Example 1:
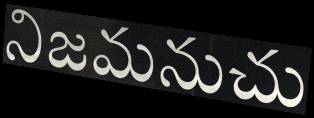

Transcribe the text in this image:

నిజమనుచు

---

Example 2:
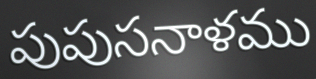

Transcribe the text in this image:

పుపుసనాళము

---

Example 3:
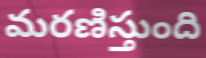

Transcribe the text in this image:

మరణిస్తుంది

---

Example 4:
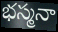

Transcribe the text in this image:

భస్మనా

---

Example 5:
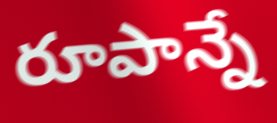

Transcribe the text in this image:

రూపాన్నే